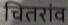
चितरांव